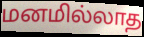
மனமில்லாத